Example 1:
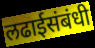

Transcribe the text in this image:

लढाईसंबंधी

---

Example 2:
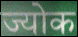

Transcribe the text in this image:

ज्योक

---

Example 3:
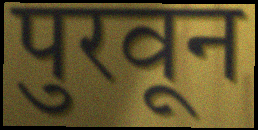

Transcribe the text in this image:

पुरवून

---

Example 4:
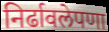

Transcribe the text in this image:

निर्ढावलेपणा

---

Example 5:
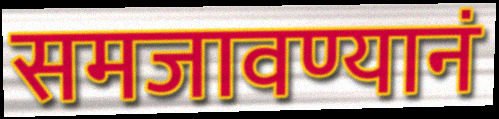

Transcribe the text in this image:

समजावण्यानं